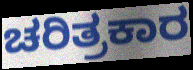
ಚರಿತ್ರಕಾರ